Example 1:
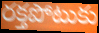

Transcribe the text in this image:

రక్తపోటుకు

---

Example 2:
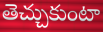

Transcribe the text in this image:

తెచ్చుకుంటా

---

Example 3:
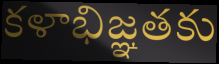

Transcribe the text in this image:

కళాభిజ్ఞతకు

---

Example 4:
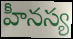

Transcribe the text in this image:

హీనస్య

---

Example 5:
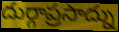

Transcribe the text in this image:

దుర్గాప్రసాద్ను